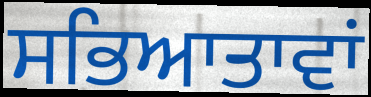
ਸਭਿਆਤਾਵਾਂ